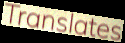
Translates